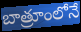
బాత్రూంలోనే